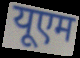
यूएम